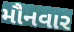
મૌનવાર